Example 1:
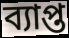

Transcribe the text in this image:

ব্যাপ্ত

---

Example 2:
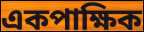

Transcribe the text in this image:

একপাক্ষিক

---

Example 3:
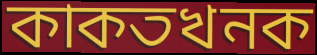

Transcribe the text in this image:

কাকতখনক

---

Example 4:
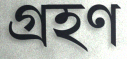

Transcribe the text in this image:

গ্ৰহণ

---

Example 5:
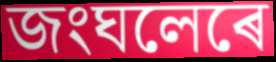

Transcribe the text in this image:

জংঘলেৰে